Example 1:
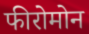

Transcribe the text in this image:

फीरोमोन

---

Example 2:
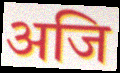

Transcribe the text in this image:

अजि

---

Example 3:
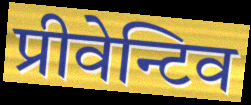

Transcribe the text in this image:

प्रीवेन्टिव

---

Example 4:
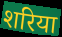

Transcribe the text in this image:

शरिया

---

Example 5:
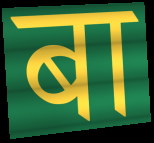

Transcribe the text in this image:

बा